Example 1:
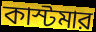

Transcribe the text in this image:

কাস্টমার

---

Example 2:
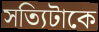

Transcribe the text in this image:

সত্যিটাকে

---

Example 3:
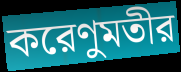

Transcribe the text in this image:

করেণুমতীর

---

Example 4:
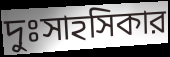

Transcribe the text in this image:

দুঃসাহসিকার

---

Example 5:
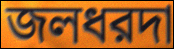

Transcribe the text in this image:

জলধরদা